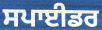
ਸਪਾਈਡਰ